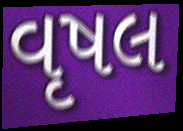
વૃષલ